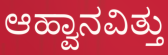
ಆಹ್ವಾನವಿತ್ತು